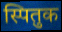
स्पितुक